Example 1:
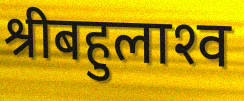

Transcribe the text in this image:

श्रीबहुलाश्व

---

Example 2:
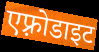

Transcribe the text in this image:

एफ़्रोडाइट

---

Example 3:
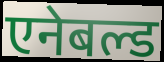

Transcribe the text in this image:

एनेबल्ड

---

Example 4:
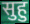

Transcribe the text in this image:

सुहु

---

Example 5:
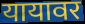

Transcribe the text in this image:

यायावर